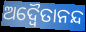
ଅଦ୍ଵୈତାନନ୍ଦ